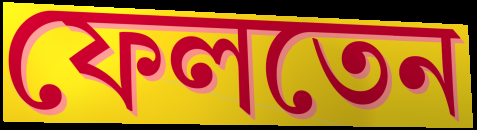
ফেলতেন